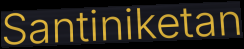
Santiniketan